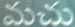
మచు